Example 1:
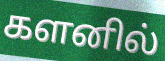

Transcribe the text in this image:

களனில்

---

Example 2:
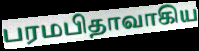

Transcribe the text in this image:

பரமபிதாவாகிய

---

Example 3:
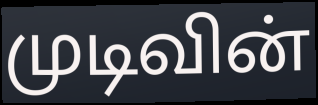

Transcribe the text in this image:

முடிவின்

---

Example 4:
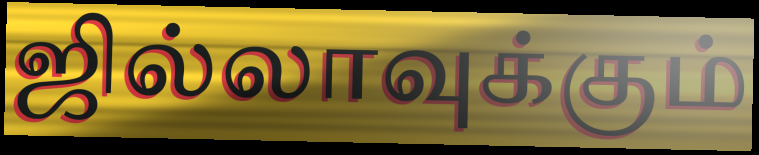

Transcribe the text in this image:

ஜில்லாவுக்கும்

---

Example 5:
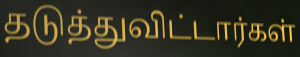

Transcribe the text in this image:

தடுத்துவிட்டார்கள்